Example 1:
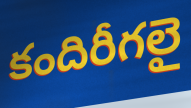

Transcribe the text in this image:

కందిరీగలై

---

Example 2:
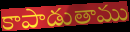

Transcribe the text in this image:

కాపాడుతాము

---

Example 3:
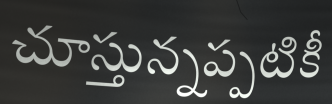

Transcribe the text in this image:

చూస్తున్నప్పటికీ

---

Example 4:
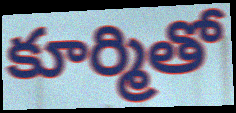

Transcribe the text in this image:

కూర్మితో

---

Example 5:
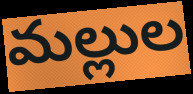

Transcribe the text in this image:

మల్లుల